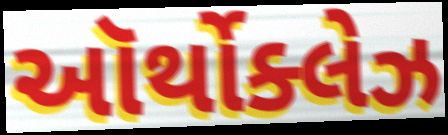
ઑર્થોક્લેઝ